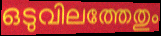
ഒടുവിലത്തേതും